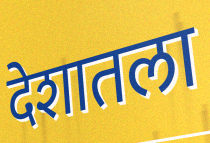
देशातला